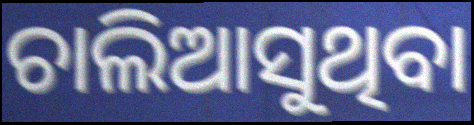
ଚାଲିଆସୁଥିବା